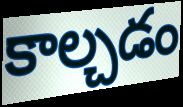
కాల్చడం